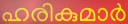
ഹരികുമാർ